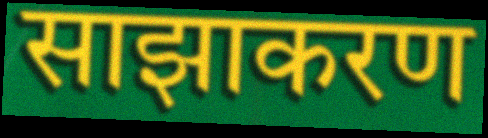
साझाकरण